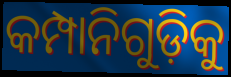
କମ୍ପାନିଗୁଡ଼ିକୁ